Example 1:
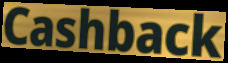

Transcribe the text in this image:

Cashback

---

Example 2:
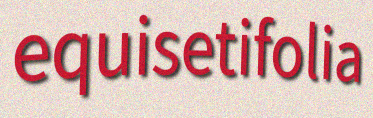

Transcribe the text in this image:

equisetifolia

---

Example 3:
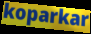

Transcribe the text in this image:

koparkar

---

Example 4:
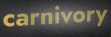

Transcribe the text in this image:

carnivory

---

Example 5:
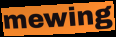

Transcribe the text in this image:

mewing